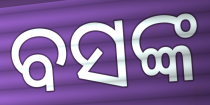
ବସଙ୍କ